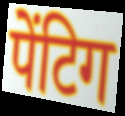
पेंटिग